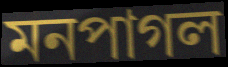
মনপাগল